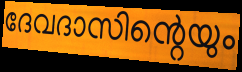
ദേവദാസിന്റെയും